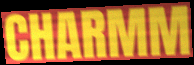
CHARMM